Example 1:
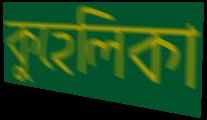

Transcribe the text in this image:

কুহেলিকা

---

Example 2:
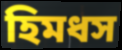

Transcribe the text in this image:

হিমধস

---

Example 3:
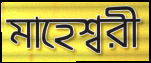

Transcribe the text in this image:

মাহেশ্বরী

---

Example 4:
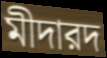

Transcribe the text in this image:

মীদারদ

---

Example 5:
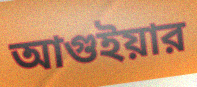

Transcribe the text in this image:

আগুইয়ার